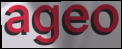
ageo